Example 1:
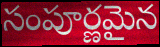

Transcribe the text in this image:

సంపూర్ణమైన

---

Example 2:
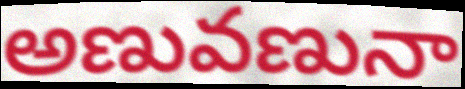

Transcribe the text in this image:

అణువణునా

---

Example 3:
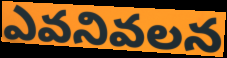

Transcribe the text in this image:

ఎవనివలన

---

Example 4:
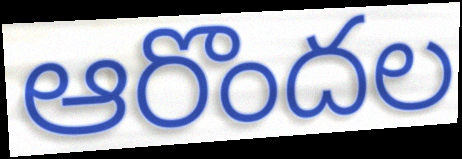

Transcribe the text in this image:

ఆరొందల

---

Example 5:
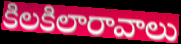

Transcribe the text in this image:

కిలకిలారావాలు